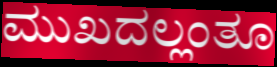
ಮುಖದಲ್ಲಂತೂ